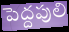
పెద్దపులి